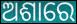
ଅଶାରେ